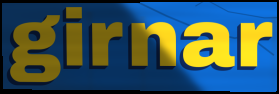
girnar